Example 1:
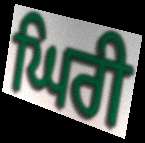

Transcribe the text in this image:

ਘਿਰੀ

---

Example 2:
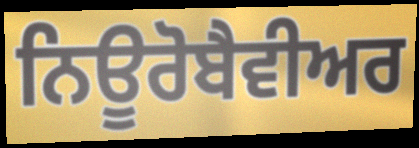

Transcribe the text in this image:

ਨਿਊਰੋਬੈਵੀਅਰ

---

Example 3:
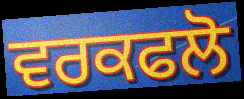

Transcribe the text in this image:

ਵਰਕਫਲੋ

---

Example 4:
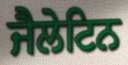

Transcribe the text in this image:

ਜੈਲੇਟਿਨ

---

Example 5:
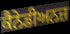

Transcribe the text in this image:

ਕੈਨੇਡੀਅਨਜ਼